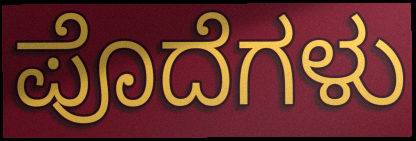
ಪೊದೆಗಳು